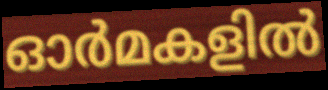
ഓർമകളിൽ